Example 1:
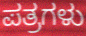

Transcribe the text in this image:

ಪತ್ರಗಳು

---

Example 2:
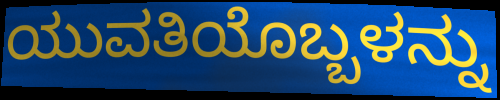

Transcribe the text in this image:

ಯುವತಿಯೊಬ್ಬಳನ್ನು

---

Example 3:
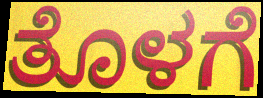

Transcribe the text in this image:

ತೊಳಗೆ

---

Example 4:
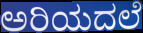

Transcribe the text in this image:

ಅರಿಯದಲೆ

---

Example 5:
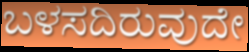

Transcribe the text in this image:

ಬಳಸದಿರುವುದೇ